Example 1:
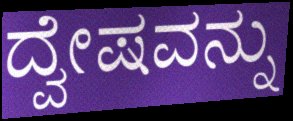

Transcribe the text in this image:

ದ್ವೇಷವನ್ನು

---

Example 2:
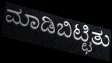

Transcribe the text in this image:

ಮಾಡಿಬಿಟ್ಟಿತು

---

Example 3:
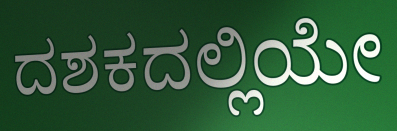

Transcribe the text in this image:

ದಶಕದಲ್ಲಿಯೇ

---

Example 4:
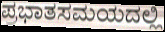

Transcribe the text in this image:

ಪ್ರಭಾತಸಮಯದಲ್ಲಿ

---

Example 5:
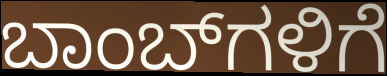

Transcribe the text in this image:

ಬಾಂಬ್‌ಗಳಿಗೆ